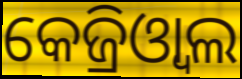
କେଜ୍ରିଓ୍ଵାଲ